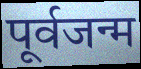
पूर्वजन्म